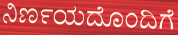
ನಿರ್ಣಯದೊಂದಿಗೆ